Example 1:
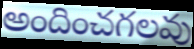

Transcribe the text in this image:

అందించగలవు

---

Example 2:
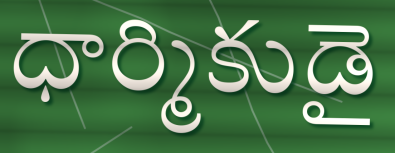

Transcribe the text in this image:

ధార్మికుడై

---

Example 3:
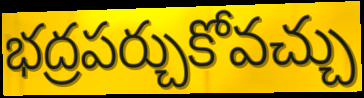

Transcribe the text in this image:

భద్రపర్చుకోవచ్చు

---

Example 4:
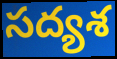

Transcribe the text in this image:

సద్యశ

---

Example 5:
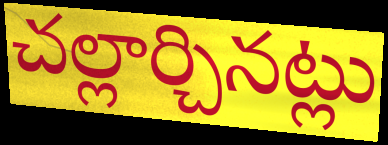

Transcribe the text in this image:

చల్లార్చినట్లు